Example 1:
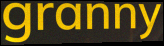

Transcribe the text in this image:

granny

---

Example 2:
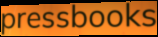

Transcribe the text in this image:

pressbooks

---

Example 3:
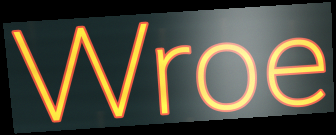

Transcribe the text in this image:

Wroe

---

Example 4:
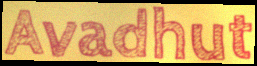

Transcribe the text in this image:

Avadhut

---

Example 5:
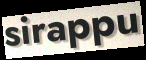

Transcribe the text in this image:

sirappu